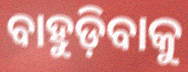
ବାହୁଡ଼ିବାକୁ